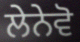
ਲੇਨੇਵੋ